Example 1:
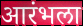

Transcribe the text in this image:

आरंभला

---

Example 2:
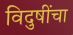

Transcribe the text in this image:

विदुषींचा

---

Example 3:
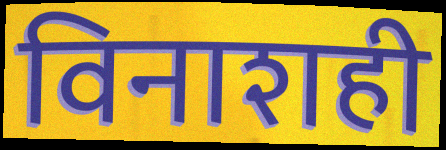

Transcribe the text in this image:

विनाशही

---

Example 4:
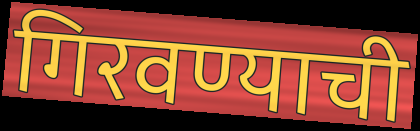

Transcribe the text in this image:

गिरवण्याची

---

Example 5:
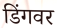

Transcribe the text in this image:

डिंगवर